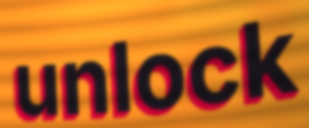
unlock